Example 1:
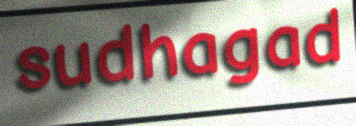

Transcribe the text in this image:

sudhagad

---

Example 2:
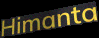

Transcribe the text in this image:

Himanta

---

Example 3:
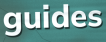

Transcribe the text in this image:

guides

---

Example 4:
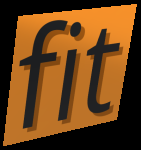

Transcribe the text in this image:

fit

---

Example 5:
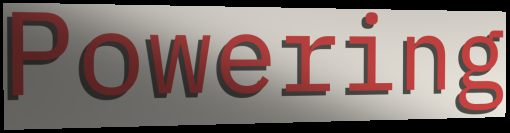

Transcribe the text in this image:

Powering